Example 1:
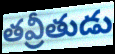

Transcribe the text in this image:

తవ్రీతుడు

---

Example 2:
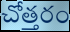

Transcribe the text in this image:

చోత్తరం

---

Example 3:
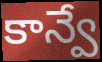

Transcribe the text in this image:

కాన్వే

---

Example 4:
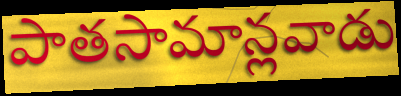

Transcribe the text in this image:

పాతసామాన్లవాడు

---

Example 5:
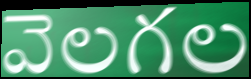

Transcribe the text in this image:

వెలగల